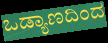
ಒಡ್ಯಾಣದಿಂದ